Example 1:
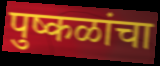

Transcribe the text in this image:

पुष्कळांचा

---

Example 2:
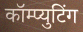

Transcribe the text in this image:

कॉम्प्युटिंग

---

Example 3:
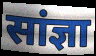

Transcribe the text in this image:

सांज्ञा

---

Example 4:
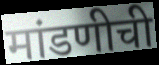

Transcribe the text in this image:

मांडणीची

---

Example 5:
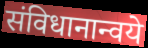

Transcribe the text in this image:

संविधानान्वये